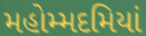
મહોમ્મદમિયાં